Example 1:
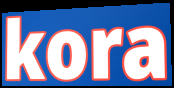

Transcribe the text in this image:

kora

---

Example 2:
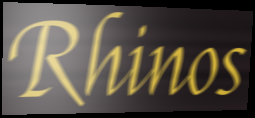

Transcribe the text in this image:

Rhinos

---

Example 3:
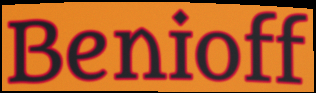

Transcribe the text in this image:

Benioff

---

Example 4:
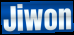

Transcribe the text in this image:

Jiwon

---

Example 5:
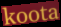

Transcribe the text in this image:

koota